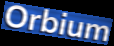
Orbium